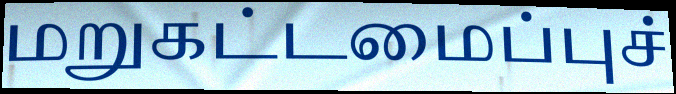
மறுகட்டமைப்புச்